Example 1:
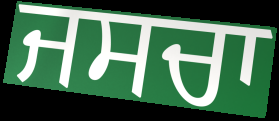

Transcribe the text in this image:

ਜਸਚਾ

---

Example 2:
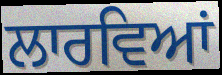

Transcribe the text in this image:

ਲਾਰਵਿਆਂ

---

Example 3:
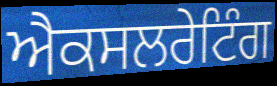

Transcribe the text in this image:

ਐਕਸਲਰੇਟਿੰਗ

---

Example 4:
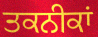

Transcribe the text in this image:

ਤਕਨੀਕਾਂ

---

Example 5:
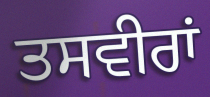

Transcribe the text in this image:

ਤਸਵੀਰਾਂ